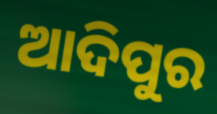
ଆଦିପୁର